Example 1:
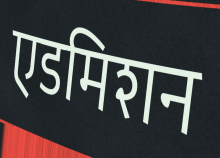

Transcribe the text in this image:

एडमिशन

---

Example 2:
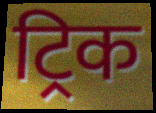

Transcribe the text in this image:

ट्रिक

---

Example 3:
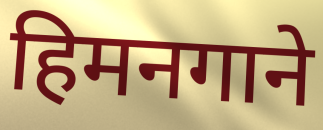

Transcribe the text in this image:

हिमनगाने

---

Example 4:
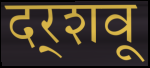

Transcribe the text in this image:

दर्शवू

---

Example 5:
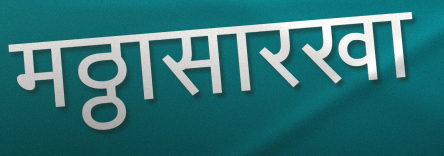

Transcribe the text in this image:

मठ्ठासारखा